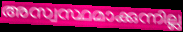
അസ്വസ്ഥമാക്കുന്നില്ല